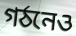
গঠনেও